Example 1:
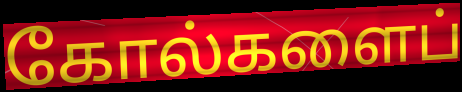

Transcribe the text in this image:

கோல்களைப்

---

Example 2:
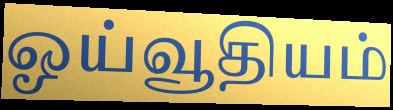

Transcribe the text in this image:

ஓய்வூதியம்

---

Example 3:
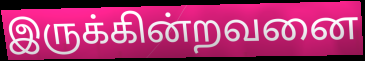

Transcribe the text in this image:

இருக்கின்றவனை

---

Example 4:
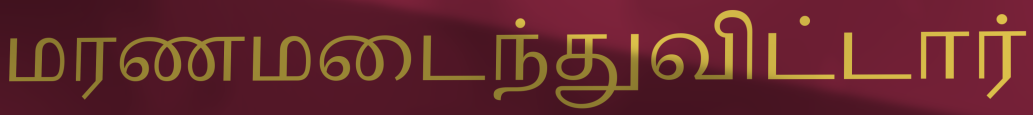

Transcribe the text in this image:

மரணமடைந்துவிட்டார்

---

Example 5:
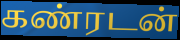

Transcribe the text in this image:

கண்ரடன்